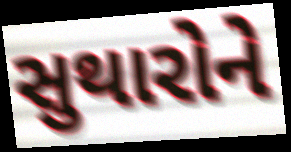
સુથારોને